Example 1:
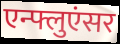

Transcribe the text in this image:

एन्फ्लुएंसर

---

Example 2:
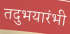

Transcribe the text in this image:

तदुभयारंभी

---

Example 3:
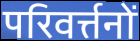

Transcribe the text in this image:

परिवर्त्तनों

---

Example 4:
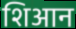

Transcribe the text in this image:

शिआन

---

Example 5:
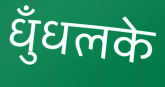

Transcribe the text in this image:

धुँधलके